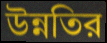
উন্নতির